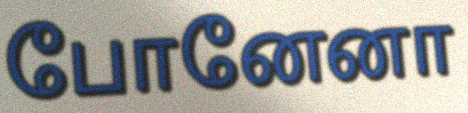
போனேனா